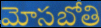
మోసబోతి